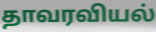
தாவரவியல்